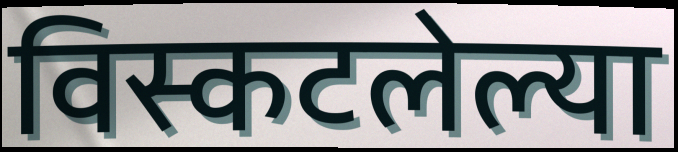
विस्कटलेल्या